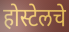
होस्टेलचे